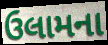
ઉલામના